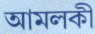
আমলকী